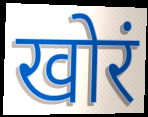
खोरं